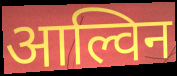
आल्विन